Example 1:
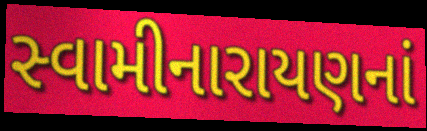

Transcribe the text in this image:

સ્વામીનારાયણનાં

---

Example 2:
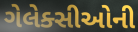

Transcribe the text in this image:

ગેલેક્સીઓની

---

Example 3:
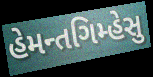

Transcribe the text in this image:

હેમન્તગિમ્હેસુ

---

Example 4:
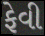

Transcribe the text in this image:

ફેવી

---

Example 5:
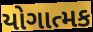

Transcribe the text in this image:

યોગાત્મક